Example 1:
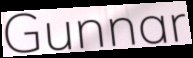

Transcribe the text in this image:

Gunnar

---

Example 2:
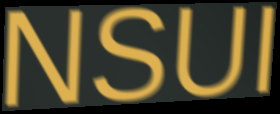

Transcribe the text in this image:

NSUI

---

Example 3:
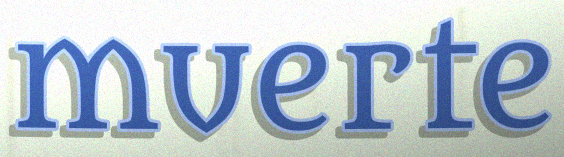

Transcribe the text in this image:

muerte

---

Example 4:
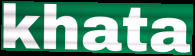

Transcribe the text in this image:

khata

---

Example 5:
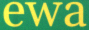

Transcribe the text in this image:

ewa